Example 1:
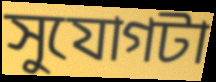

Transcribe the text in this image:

সুযোগটা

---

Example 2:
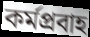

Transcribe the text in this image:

কর্মপ্রবাহ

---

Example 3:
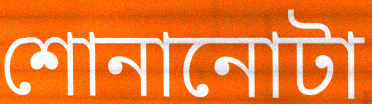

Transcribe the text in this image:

শোনানোটা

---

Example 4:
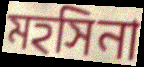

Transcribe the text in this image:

মহসিনা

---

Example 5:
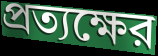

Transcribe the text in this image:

প্রত্যক্ষের